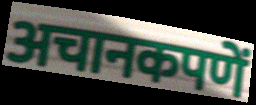
अचानकपणें